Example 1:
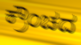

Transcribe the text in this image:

ಕ್ರೌಂಚದ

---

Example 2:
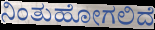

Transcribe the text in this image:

ನಿಂತುಹೋಗಲಿದೆ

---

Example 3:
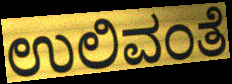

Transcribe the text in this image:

ಉಲಿವಂತೆ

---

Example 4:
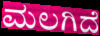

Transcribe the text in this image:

ಮಲಗಿದೆ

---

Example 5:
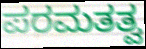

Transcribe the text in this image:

ಪರಮತತ್ವ